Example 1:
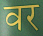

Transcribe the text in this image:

वर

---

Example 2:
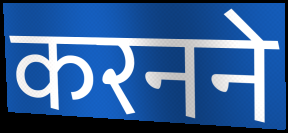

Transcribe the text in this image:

करनने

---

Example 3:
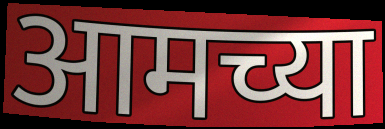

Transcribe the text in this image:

आमच्या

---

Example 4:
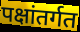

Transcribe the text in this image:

पक्षांतर्गत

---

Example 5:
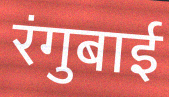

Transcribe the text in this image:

रंगुबाई